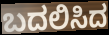
ಬದಲಿಸಿದ